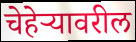
चेहेऱ्यावरील